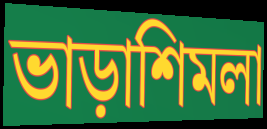
ভাড়াশিমলা